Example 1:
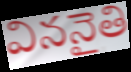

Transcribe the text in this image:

విననైతి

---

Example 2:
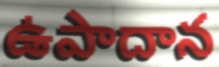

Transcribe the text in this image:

ఉపాదాన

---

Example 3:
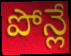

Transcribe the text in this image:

పోన్లే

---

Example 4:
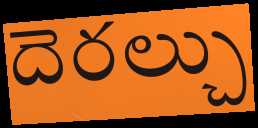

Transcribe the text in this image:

దెరల్చు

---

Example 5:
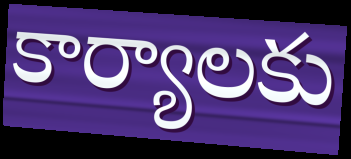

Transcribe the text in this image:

కార్యాలకు